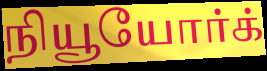
நியூயோர்க்